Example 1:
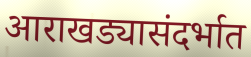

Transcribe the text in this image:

आराखड्यासंदर्भात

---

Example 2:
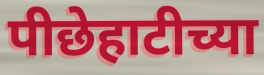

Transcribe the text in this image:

पीछेहाटीच्या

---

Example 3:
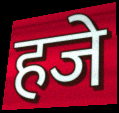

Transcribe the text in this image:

हजे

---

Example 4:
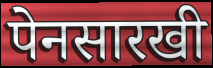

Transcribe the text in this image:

पेनसारखी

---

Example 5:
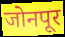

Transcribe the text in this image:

जोनपूर